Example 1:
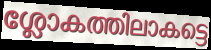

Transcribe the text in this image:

ശ്ലോകത്തിലാകട്ടെ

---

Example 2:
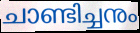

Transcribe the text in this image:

ചാണ്ടിച്ചനും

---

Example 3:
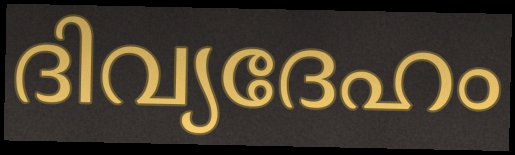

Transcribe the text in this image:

ദിവ്യദേഹം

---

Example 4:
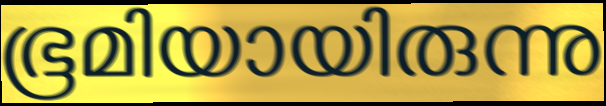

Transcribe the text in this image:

ഭൂമിയായിരുന്നു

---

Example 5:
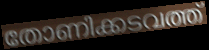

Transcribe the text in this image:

തോണിക്കടവത്ത്